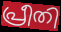
പ്രീതി